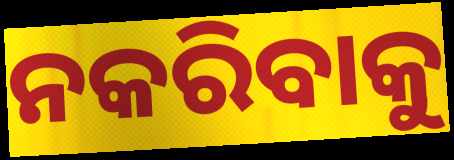
ନକରିବାକୁ